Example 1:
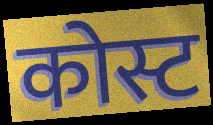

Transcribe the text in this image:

कोस्ट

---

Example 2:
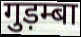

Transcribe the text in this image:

गुड़म्बा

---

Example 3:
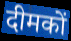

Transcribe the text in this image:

दीमकों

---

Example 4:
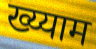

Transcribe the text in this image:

ख्य्याम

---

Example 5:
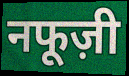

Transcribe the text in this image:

नफूज़ी